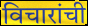
विचारांची